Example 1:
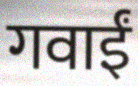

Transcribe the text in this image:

गवाईं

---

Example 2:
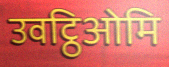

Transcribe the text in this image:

उवट्ठिओमि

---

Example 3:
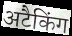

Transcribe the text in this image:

अटैकिंग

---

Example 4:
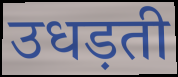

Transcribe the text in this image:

उधड़ती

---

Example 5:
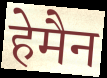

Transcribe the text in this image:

हेमैन